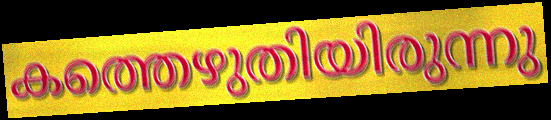
കത്തെഴുതിയിരുന്നു